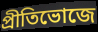
প্রীতিভোজে